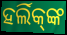
ହର୍ଲିକ୍‌ଙ୍କ